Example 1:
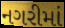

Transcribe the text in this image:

નગરીમાં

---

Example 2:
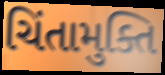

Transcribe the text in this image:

ચિંતામુક્તિ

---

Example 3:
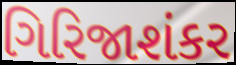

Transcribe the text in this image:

ગિરિજાશંકર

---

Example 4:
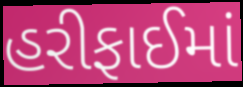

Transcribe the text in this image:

હરીફાઈમાં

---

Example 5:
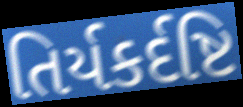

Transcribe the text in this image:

તિર્યકર્દષ્ટિ